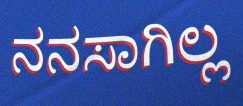
ನನಸಾಗಿಲ್ಲ